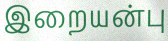
இறையன்பு